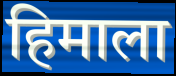
हिमाला